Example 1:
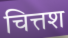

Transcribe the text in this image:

चित्तश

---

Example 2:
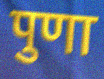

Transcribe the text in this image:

पुणा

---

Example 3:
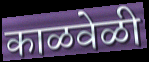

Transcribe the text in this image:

काळवेळी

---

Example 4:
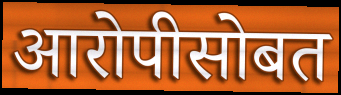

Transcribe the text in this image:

आरोपीसोबत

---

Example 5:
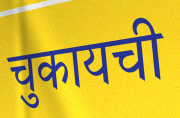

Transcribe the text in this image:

चुकायची